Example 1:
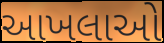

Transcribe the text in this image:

આખલાઓ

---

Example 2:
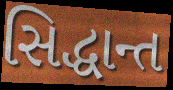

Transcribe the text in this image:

સિદ્ધાન્ત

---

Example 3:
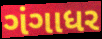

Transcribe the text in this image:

ગંગાધર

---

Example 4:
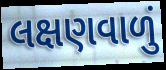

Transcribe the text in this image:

લક્ષણવાળું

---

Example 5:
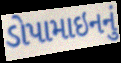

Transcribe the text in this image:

ડોપામાઇનનું